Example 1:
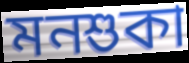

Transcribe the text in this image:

মনশুকা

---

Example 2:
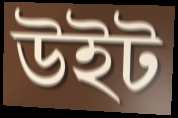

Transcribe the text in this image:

উইট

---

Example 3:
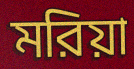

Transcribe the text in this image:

মরিয়া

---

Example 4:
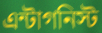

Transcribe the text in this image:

এন্টাগনিস্ট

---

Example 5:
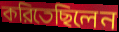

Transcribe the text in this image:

করিতেছিলেন